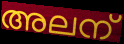
അലന്